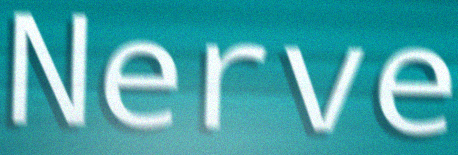
Nerve